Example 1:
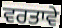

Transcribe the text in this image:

ਵਰਤਾਵੇ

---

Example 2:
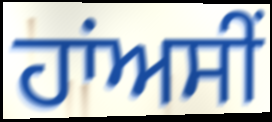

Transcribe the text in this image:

ਹਾਂਅਸੀਂ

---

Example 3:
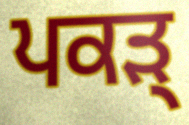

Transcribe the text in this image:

ਪਕੜ੍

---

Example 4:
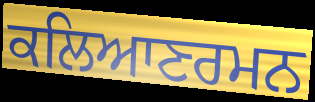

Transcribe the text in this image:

ਕਲਿਆਣਰਮਨ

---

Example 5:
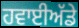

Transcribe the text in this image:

ਹਵਾਈਅੱਡੇ